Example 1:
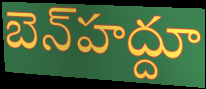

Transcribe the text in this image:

బెన్‍హద్దూ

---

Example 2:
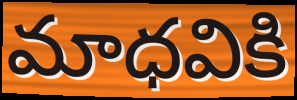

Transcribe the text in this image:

మాధవికి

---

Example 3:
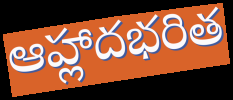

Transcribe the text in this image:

ఆహ్లాదభరిత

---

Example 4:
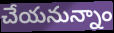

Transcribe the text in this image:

చేయనున్నాం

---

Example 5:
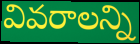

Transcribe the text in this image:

వివరాలన్ని